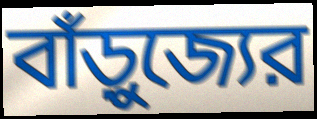
বাঁড়ুজ্যের